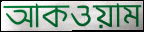
আকওয়াম